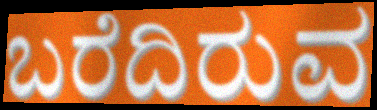
ಬರೆದಿರುವ